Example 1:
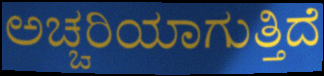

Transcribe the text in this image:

ಅಚ್ಚರಿಯಾಗುತ್ತಿದೆ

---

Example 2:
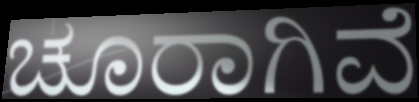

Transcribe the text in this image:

ಚೂರಾಗಿವೆ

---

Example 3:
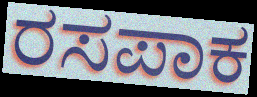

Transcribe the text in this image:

ರಸಪಾಕ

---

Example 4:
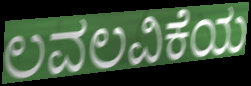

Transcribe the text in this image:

ಲವಲವಿಕೆಯ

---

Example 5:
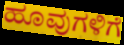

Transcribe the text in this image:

ಹೂವುಗಳಿಗೆ